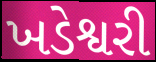
ખડેશ્વરી